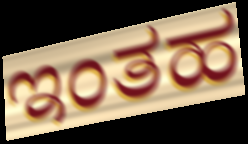
ಇಂತಹ